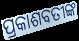
ପ୍ରକାଶବତୀଙ୍କ